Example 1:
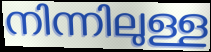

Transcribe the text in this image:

നിന്നിലുള്ള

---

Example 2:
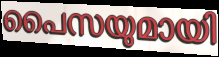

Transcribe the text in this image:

പൈസയുമായി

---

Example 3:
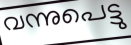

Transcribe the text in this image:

വന്നുപെട്ടു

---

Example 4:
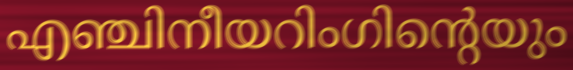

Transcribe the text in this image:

എഞ്ചിനീയറിംഗിന്റെയും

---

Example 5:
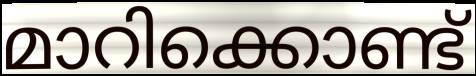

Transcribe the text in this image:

മാറിക്കൊണ്ട്